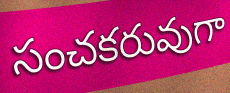
సంచకరువుగా